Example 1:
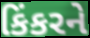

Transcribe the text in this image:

કિંકરને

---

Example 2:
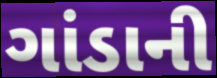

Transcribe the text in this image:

ગાંડાની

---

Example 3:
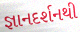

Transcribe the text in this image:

જ્ઞાનદર્શનથી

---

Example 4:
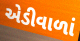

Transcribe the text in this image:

એડીવાળાં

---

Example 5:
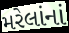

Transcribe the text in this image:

મરેલાંનાં